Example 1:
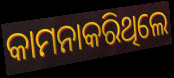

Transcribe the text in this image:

କାମନାକରିଥିଲେ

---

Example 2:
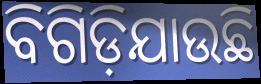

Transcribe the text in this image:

ବିଗିଡ଼ିଯାଉଛି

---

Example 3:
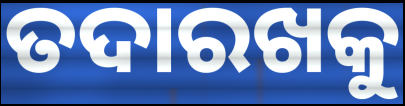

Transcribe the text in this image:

ତଦାରଖକୁ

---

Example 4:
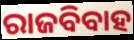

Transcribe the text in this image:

ରାଜବିବାହ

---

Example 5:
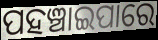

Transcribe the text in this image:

ପହଞ୍ଚାଇପାରେ